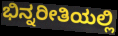
ಭಿನ್ನರೀತಿಯಲ್ಲಿ